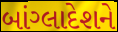
બાંગ્લાદેશને